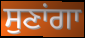
ਸੁਣਾਂਗਾ